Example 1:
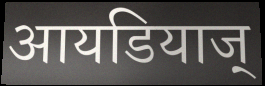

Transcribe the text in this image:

आयडियाज्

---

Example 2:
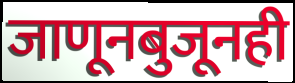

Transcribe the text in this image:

जाणूनबुजूनही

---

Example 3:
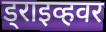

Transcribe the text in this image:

ड्राइव्हवर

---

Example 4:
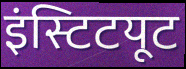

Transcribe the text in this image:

इंस्टिटयूट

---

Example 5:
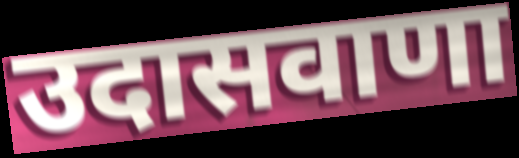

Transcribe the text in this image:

उदासवाणा